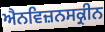
ਐਨਵਿਜ਼ਨਸਕ੍ਰੀਨ